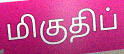
மிகுதிப்